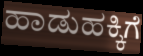
ಹಾಡುಹಕ್ಕಿಗೆ